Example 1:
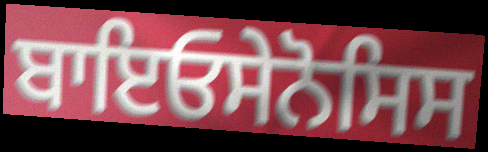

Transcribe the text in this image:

ਬਾਇਓਸੇਨੋਸਿਸ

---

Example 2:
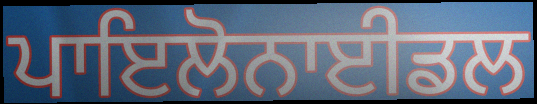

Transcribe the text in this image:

ਪਾਇਲੋਨਾਈਡਲ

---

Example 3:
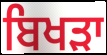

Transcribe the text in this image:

ਬਿਖੜਾ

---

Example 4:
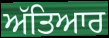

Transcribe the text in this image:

ਅੱਤਿਆਰ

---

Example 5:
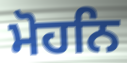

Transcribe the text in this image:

ਮੋਹਨਿ